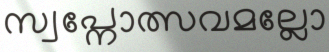
സ്വപ്നോത്സവമല്ലോ